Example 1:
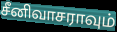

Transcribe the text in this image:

சீனிவாசராவும்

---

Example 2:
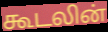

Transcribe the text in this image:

கூடலின்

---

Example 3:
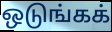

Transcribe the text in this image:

ஒடுங்கக்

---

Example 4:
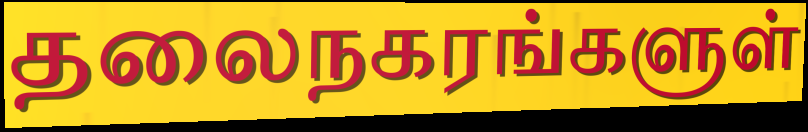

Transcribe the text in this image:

தலைநகரங்களுள்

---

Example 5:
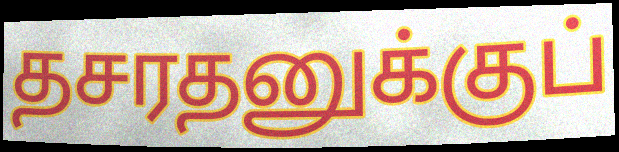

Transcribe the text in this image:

தசரதனுக்குப்